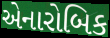
એનારોબિક